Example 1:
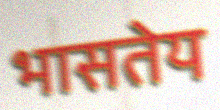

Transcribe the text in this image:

भासतेय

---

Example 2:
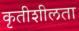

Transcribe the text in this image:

कृतीशीलता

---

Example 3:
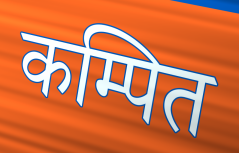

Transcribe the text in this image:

कम्पित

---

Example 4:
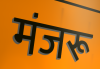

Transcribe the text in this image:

मंजरू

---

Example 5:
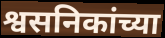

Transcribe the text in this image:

श्वसनिकांच्या